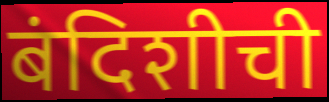
बंदिशीची